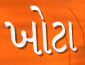
ખોટા